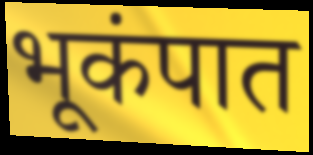
भूकंपात